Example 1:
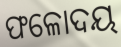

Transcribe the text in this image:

ଫଳୋଦୟ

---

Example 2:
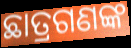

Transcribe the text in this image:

ଛାତ୍ରଗଣଙ୍କ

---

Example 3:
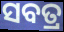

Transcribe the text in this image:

ସବତ୍ର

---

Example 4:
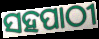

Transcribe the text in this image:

ସହପାଠୀ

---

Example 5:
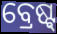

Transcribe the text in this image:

ବ୍ରେଷ୍ଟ୍